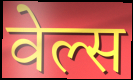
वेल्स